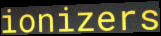
ionizers